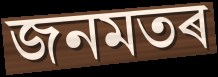
জনমতৰ